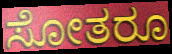
ಸೋತರೂ